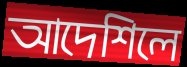
আদেশিলে